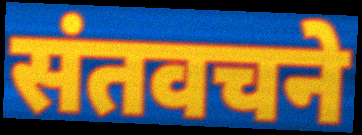
संतवचने